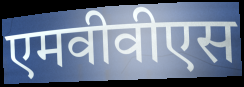
एमवीवीएस